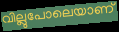
വില്ലുപോലെയാണ്